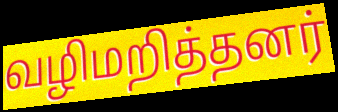
வழிமறித்தனர்